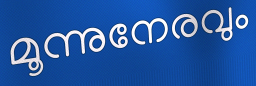
മൂന്നുനേരവും